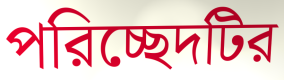
পরিচ্ছেদটির